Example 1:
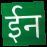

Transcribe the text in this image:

ईन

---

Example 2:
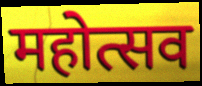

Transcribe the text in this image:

महोत्सव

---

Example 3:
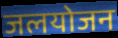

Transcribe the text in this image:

जलयोजन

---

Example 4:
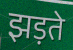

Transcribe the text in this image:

झड़ते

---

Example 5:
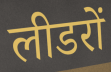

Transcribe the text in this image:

लीडरों